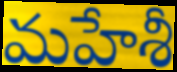
మహేశీ